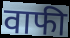
वाफी